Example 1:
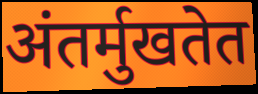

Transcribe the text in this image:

अंतर्मुखतेत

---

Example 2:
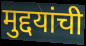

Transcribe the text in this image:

मुद्दयांची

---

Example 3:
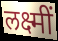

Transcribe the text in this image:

लक्ष्मीं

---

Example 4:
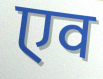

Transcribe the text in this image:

एव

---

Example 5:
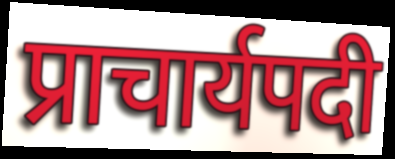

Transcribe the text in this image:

प्राचार्यपदी